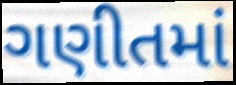
ગણીતમાં